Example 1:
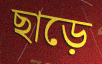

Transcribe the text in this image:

ছাড়ে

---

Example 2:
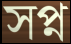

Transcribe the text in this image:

সপ্ন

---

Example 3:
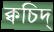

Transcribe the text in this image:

ক্বচিদ্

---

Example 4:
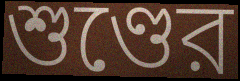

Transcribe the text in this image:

শুণ্ডের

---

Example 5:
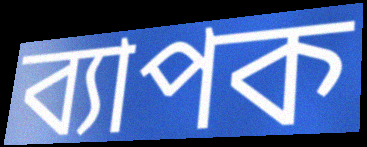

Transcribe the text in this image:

ব্যাপক